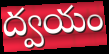
ద్వయం